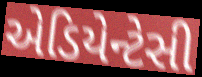
એડિયેન્ટેસી